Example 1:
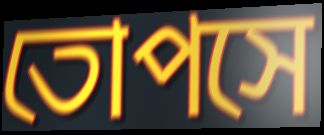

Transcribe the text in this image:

তোপসে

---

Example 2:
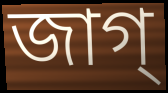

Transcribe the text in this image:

জাগ্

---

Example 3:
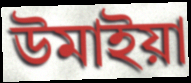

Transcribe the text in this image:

উমাইয়া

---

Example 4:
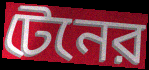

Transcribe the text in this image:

টেনের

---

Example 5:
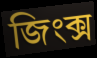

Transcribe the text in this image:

জিংক্স